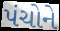
પંચોને